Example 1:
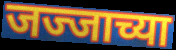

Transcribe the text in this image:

जज्जाच्या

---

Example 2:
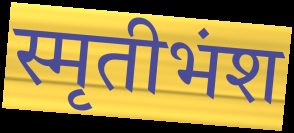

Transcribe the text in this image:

स्मृतीभंश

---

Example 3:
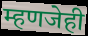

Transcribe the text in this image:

म्हणजेही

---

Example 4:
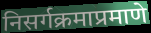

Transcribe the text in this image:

निसर्गक्रमाप्रमाणे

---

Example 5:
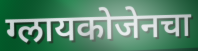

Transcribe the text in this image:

ग्लायकोजेनचा